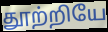
தூற்றியே